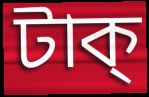
টাক্